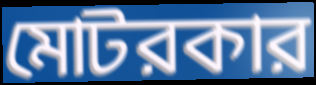
মোটরকার